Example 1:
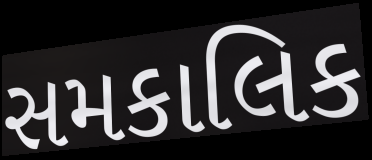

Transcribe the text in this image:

સમકાલિક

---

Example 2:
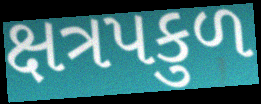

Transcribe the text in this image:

ક્ષત્રપકુળ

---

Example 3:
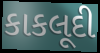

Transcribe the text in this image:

કાકલૂદી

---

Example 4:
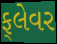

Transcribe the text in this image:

ફ્‌લેવર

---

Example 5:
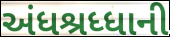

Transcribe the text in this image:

અંધશ્રધ્ધાની